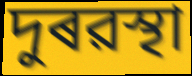
দুৰৱস্থা